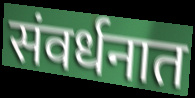
संवर्धनात